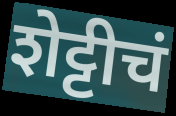
शेट्टीचं